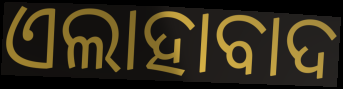
ଏଲାହାବାଦ